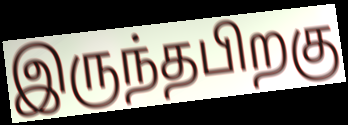
இருந்தபிறகு